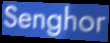
Senghor